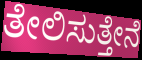
ತೇಲಿಸುತ್ತೇನೆ